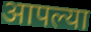
आपल्या